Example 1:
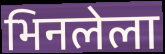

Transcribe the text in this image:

भिनलेला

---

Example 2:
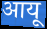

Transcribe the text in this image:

आयू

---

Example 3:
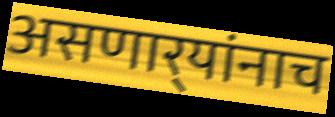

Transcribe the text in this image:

असणार्‍यांनाच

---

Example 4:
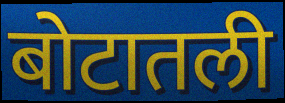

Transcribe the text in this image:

बोटातली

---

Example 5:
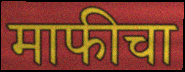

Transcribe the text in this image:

माफीचा